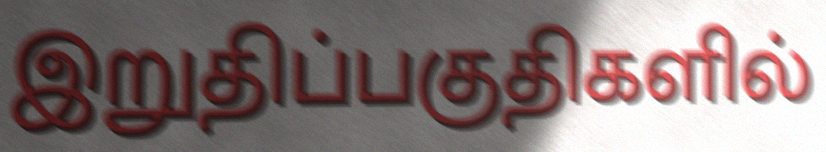
இறுதிப்பகுதிகளில்